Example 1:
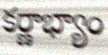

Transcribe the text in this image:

కర్ణాభ్యాం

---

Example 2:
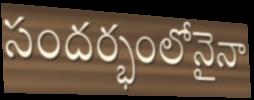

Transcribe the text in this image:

సందర్భంలోనైనా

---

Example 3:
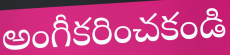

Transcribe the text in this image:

అంగీకరించకండి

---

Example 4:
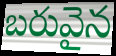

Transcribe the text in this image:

బరువైన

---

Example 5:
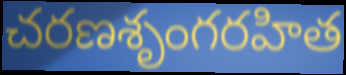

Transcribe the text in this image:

చరణశృంగరహిత